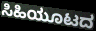
ಸಿಹಿಯೂಟದ